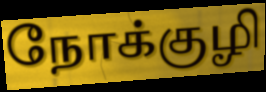
நோக்குழி